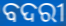
ବଦରୀ